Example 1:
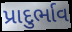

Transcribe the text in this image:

પ્રાદુર્ભાવ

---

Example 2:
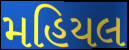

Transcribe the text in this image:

મહિયલ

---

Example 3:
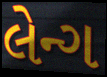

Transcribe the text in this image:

લેન્ગ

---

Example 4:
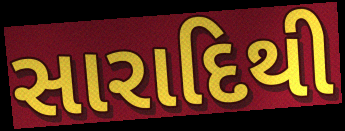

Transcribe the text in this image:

સારાદિથી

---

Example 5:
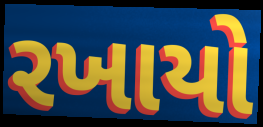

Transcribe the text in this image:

રખાયો